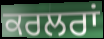
ਕਰਲਰਾਂ